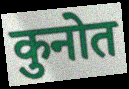
कुनोत